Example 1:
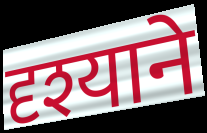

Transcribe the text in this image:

दृश्याने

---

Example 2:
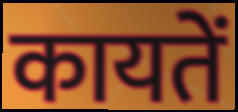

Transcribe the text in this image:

कायतें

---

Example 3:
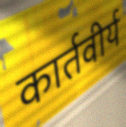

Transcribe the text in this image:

कार्तवीर्य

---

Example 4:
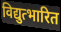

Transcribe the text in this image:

विद्युत्भारित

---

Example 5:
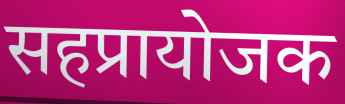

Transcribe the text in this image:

सहप्रायोजक